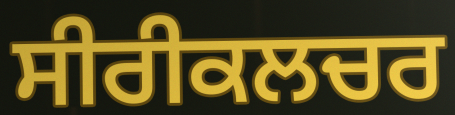
ਸੀਰੀਕਲਚਰ